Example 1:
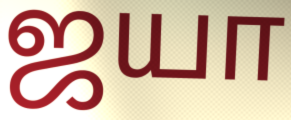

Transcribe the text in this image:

ஜயா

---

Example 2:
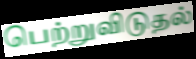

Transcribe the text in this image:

பெற்றுவிடுதல்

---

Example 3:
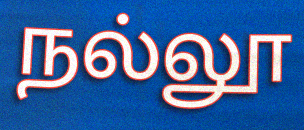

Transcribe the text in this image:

நல்லூ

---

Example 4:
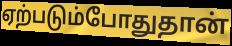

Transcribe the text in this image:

ஏற்படும்போதுதான்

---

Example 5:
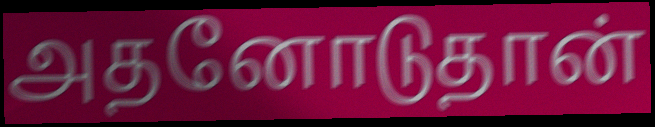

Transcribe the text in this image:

அதனோடுதான்